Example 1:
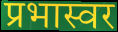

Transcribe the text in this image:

प्रभास्वर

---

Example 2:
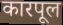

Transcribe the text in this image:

कारपूल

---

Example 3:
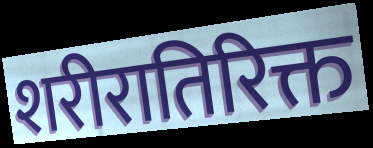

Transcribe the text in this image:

शरीरातिरिक्त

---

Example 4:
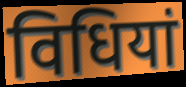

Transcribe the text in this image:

विधियां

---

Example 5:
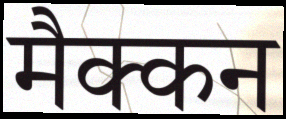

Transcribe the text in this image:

मैक्कन